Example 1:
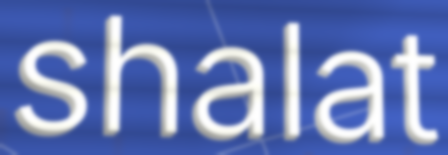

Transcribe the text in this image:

shalat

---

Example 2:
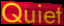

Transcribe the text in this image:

Quiet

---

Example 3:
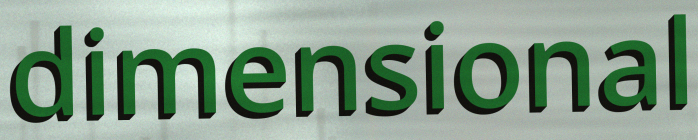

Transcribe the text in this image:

dimensional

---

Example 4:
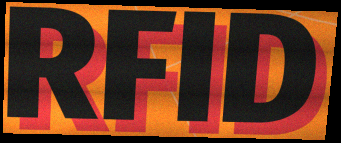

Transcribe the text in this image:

RFID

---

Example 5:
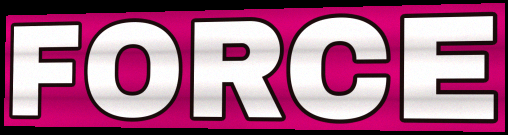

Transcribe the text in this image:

FORCE